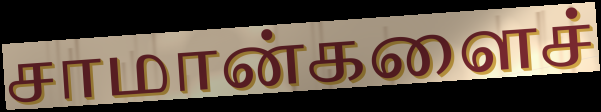
சாமான்களைச்